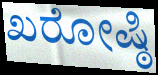
ಖರೋಷ್ಠಿ